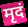
मृदं